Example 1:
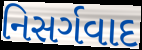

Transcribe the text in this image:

નિસર્ગવાદ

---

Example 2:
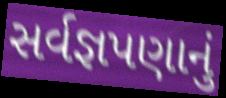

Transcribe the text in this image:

સર્વજ્ઞપણાનું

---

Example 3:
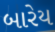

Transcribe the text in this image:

બારેય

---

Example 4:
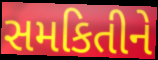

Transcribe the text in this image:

સમકિતીને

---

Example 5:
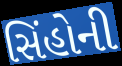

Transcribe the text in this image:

સિંહોની